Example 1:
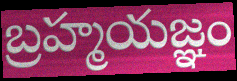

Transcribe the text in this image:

బ్రహ్మయజ్ఞం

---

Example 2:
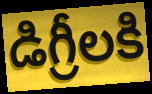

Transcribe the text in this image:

డిగ్రీలకి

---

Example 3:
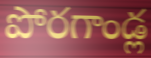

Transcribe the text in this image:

పోరగాండ్ల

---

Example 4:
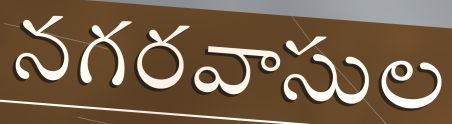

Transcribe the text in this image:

నగరవాసుల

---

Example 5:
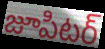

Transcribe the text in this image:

జూపిటర్